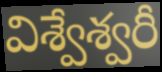
విశ్వేశ్వరీ